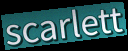
scarlett